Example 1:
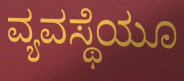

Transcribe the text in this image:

ವ್ಯವಸ್ಥೆಯೂ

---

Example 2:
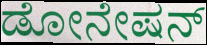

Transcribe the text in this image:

ಡೋನೇಷನ್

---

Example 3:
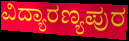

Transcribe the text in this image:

ವಿದ್ಯಾರಣ್ಯಪುರ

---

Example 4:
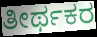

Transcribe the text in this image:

ತೀರ್ಥಕರ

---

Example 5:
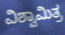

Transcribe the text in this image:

ವಿಶ್ವಾಮಿತ್ರ